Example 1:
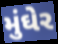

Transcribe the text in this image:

મુંઘેર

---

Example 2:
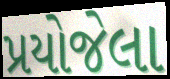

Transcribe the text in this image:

પ્રયોજેલા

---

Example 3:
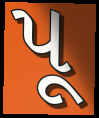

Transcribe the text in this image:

પૂ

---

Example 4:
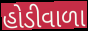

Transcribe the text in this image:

હોડીવાળા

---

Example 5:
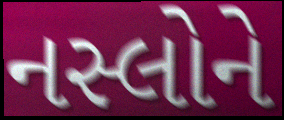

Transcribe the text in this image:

નસ્લોને